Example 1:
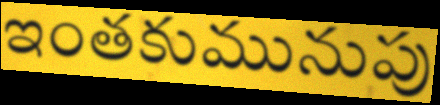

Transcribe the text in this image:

ఇంతకుమునుపు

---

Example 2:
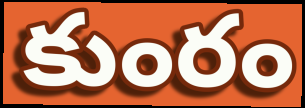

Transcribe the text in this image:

కుంరం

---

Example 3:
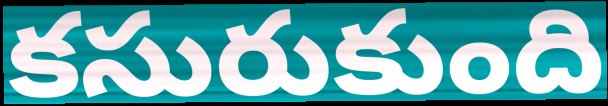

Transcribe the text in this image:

కసురుకుంది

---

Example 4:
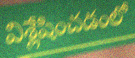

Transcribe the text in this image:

విశ్లేషించడంలో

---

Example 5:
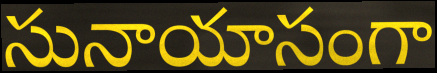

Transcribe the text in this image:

సునాయాసంగా